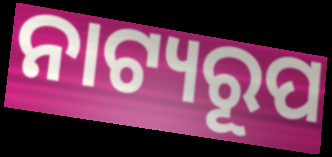
ନାଟ୍ୟରୂପ